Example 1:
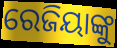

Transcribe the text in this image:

ରେଜିୟାଙ୍କୁ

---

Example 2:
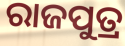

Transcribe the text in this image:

ରାଜପୁତ୍ର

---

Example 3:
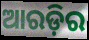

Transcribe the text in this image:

ଆରଡ଼ିର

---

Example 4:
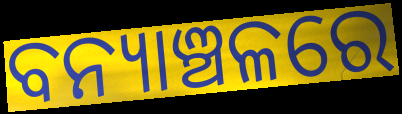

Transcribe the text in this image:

ବନ୍ୟାଞ୍ଚଳରେ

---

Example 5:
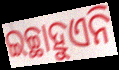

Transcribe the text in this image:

ଇଚ୍ଛାହୁଏନି